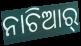
ନାଚିଆର୍